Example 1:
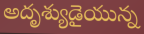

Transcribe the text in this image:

అదృశ్యుడైయున్న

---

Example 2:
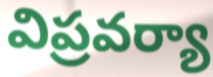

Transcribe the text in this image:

విప్రవర్యా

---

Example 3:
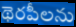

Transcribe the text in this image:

థెరపీలను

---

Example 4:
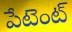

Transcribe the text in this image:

పేటెంట్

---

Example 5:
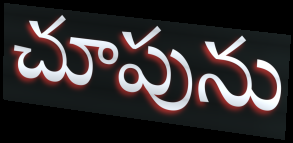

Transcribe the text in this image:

చూపును